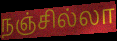
நஞ்சில்லா